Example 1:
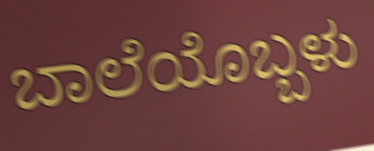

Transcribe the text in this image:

ಬಾಲೆಯೊಬ್ಬಳು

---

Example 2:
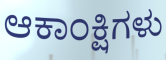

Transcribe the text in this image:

ಆಕಾಂಕ್ಷಿಗಳು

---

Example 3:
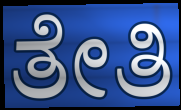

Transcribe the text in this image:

ತೇತಿ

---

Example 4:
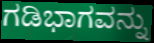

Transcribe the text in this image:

ಗಡಿಭಾಗವನ್ನು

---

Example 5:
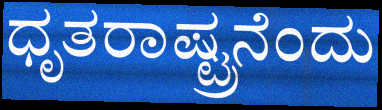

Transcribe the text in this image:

ಧೃತರಾಷ್ಟ್ರನೆಂದು